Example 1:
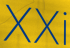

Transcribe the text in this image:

XXi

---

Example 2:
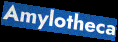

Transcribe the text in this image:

Amylotheca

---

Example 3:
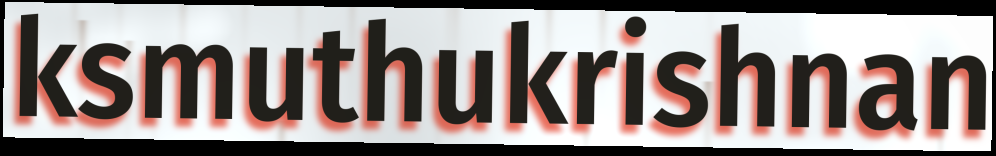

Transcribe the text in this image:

ksmuthukrishnan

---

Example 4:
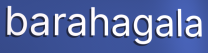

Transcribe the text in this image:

barahagala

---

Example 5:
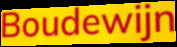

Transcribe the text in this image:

Boudewijn